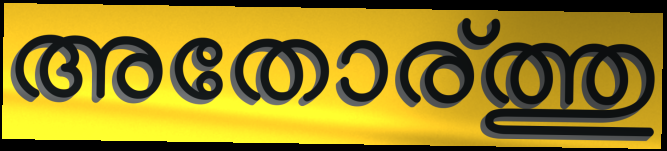
അതോര്ത്തു